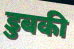
डुबकी